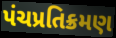
પંચપ્રતિક્રમણ